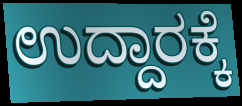
ಉದ್ದಾರಕ್ಕೆ